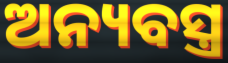
ଅନ୍ୟବସ୍ତ୍ର